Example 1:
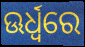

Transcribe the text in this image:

ଊର୍ଧ୍ୱରେ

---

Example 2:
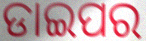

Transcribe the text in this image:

ଡାଇପର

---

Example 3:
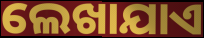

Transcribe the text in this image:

ଲେଖାଯାଏ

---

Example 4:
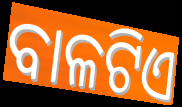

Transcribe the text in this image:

ବାଳଟିଏ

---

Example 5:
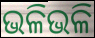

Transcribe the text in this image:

ଭଳିଭଳି